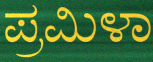
ಪ್ರಮಿಳಾ